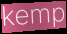
kemp